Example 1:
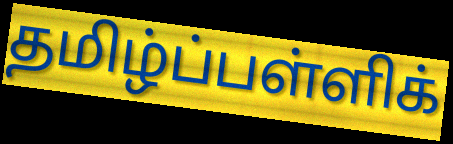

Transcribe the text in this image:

தமிழ்ப்பள்ளிக்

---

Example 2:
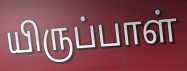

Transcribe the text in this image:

யிருப்பாள்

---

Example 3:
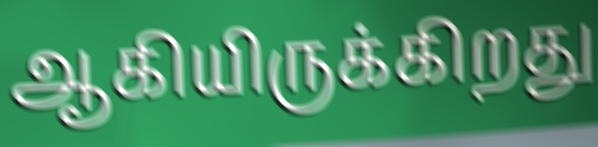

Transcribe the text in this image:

ஆகியிருக்கிறது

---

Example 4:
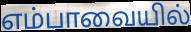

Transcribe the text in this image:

எம்பாவையில்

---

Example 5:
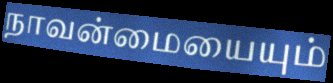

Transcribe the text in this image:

நாவன்மையையும்